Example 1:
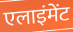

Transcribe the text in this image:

एलाइंमेंट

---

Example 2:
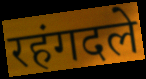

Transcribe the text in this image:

रहंगदले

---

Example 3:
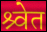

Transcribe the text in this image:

श्र्वेत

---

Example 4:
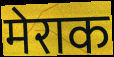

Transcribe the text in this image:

मेराक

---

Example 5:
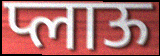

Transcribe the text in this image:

प्लाऊ